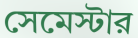
সেমেস্টার